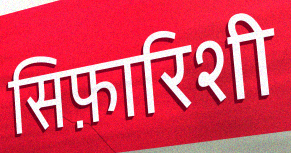
सिफ़ारिशी